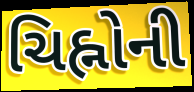
ચિહ્નોની